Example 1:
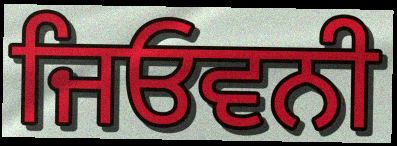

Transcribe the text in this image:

ਜਿਓਵਨੀ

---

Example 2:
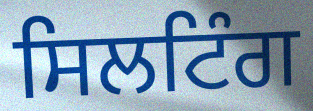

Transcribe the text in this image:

ਸਿਲਟਿੰਗ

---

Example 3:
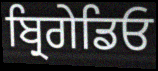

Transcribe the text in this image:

ਬ੍ਰਿਗੇਡਿਓ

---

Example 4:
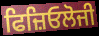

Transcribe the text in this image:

ਫਿਜ਼ਿਓਲੋਜੀ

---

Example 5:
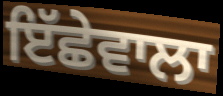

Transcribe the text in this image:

ਇੱਛੇਵਾਲਾ